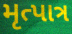
મૃત્પાત્ર